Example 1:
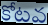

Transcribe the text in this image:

కోటవ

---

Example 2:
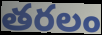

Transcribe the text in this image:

తరలం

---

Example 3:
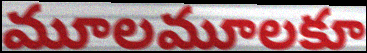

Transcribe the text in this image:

మూలమూలకూ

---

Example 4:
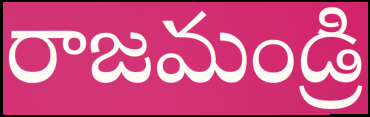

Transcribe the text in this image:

రాజమండ్రి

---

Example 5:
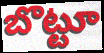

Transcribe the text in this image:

బొట్టూ